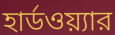
হার্ডওয়্যার